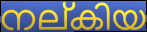
നല്കിയ